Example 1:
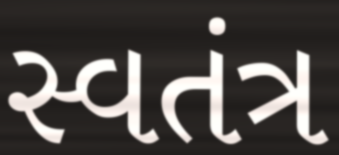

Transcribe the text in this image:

સ્વતંત્ર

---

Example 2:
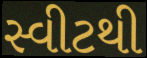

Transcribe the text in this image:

સ્વીટથી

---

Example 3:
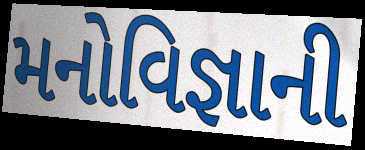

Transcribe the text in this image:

મનોવિજ્ઞાની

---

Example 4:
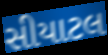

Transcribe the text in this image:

સીયાટલ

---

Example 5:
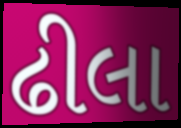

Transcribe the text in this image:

ઢીલા